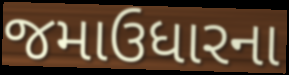
જમાઉધારના